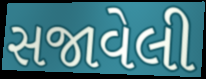
સજાવેલી